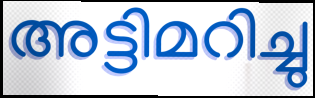
അട്ടിമറിച്ചു